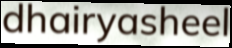
dhairyasheel